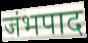
जंभपाद